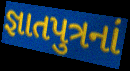
જ્ઞાતપુત્રનાં